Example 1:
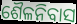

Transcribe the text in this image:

ଶୈଳନିବାସ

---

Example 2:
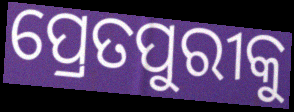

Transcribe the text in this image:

ପ୍ରେତପୁରୀକୁ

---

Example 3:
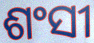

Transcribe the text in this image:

ଶଂସୀ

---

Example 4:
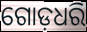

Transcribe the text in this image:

ଗୋଡ଼ଧରି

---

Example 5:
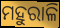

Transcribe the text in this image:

ମହୁରାଳି